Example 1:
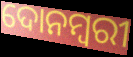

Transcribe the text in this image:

ଦୋନମ୍ବରୀ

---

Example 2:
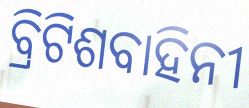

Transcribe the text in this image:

ବ୍ରିଟିଶବାହିନୀ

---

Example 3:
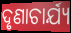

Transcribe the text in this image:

ଦୃଣାଚାର୍ଯ୍ୟ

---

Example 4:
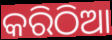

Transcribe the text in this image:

କରିଠିଆ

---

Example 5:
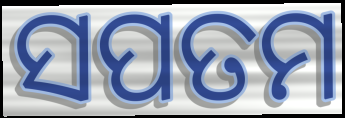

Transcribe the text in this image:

ସପତମ